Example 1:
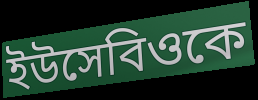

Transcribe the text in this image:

ইউসেবিওকে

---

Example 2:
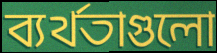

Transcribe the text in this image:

ব্যর্থতাগুলো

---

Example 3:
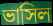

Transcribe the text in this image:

ভাসিল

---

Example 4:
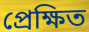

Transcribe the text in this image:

প্রেক্ষিত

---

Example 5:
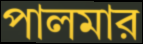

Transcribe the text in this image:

পালমার